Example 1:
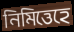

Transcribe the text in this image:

নিমিত্তেহে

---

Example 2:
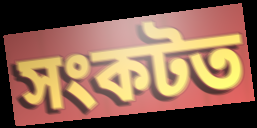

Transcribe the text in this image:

সংকটত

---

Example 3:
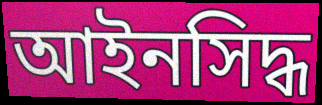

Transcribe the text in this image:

আইনসিদ্ধ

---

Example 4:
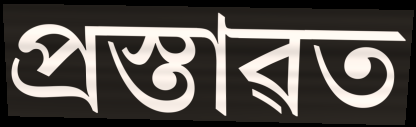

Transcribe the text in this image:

প্ৰস্তাৱত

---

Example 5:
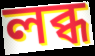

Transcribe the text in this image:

লব্ধ